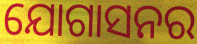
ଯୋଗାସନର